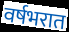
वर्षभरात